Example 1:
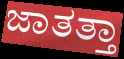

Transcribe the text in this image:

ಜಾತತ್ತಾ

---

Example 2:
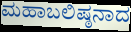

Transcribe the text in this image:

ಮಹಾಬಲಿಷ್ಠನಾದ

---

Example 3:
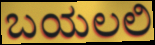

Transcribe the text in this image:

ಬಯಲಲಿ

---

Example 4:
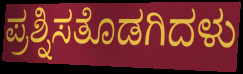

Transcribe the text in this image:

ಪ್ರಶ್ನಿಸತೊಡಗಿದಳು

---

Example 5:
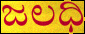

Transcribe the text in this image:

ಜಲಧಿ